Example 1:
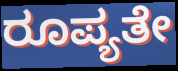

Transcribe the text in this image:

ರೂಪ್ಯತೇ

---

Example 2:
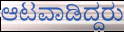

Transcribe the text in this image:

ಆಟವಾಡಿದ್ದರು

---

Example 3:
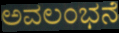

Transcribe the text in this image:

ಅವಲಂಭನೆ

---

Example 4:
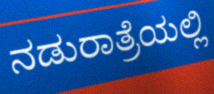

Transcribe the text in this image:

ನಡುರಾತ್ರೆಯಲ್ಲಿ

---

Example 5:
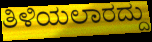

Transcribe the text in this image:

ತಿಳಿಯಲಾರದ್ದು